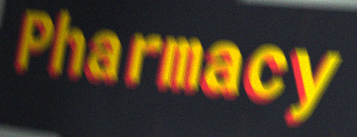
Pharmacy